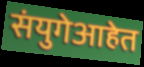
संयुगेआहेत